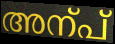
അന്പ്